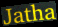
Jatha